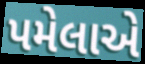
પમેલાએ